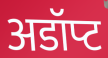
अडॉप्‍ट